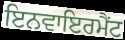
ਇਨਵਾਇਰਮੈਂਟ